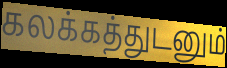
கலக்கத்துடனும்